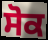
ਸੋਕ